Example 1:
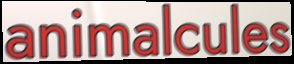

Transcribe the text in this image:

animalcules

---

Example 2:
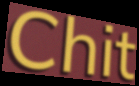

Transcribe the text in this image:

Chit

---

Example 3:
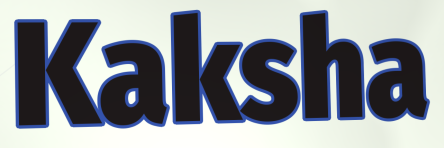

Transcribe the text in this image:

Kaksha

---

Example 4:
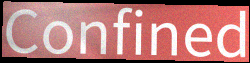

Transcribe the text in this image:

Confined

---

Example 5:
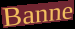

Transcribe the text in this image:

Banne